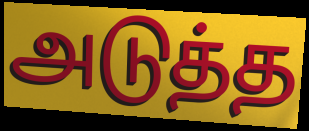
அடுத்த